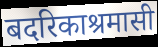
बदरिकाश्रमासी